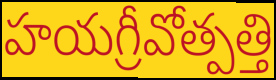
హయగ్రీవోత్పత్తి